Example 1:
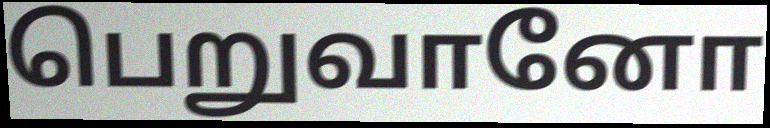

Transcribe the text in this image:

பெறுவானோ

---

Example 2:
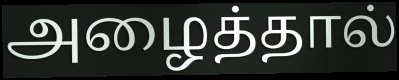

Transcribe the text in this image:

அழைத்தால்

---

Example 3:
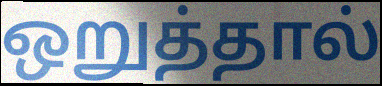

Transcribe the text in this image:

ஒறுத்தால்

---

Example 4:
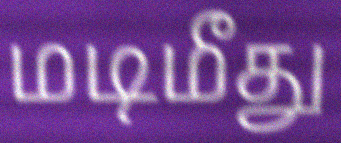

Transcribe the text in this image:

மடிமீது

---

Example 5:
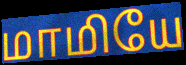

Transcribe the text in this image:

மாமியே